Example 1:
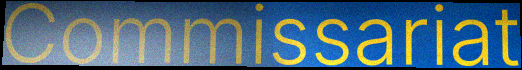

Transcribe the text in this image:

Commissariat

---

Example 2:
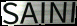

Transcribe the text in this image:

SAINI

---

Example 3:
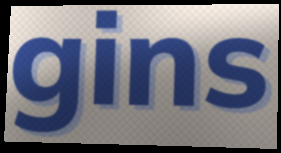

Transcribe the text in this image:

gins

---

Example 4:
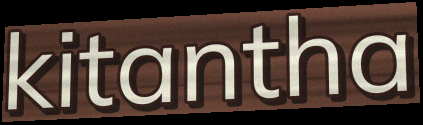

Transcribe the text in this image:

kitantha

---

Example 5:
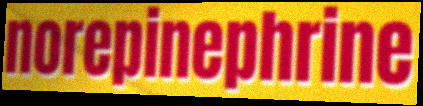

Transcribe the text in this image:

norepinephrine